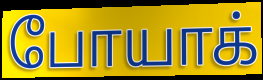
போயாக்